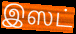
இஸட்